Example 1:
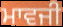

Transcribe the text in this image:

ਮਾਵਜੀ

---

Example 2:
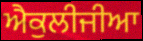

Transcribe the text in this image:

ਐਕੁਲੀਜੀਆ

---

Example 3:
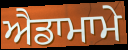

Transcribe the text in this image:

ਐਡਾਮਾਮੇ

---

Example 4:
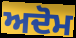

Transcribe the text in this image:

ਅਦੋਮ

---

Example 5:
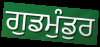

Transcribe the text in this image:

ਗੁਡਮੁੰਡੁਰ